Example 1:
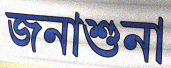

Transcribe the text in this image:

জনাশুনা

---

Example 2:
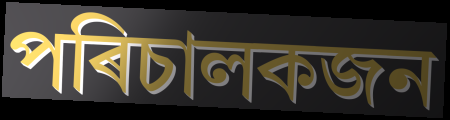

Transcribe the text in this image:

পৰিচালকজন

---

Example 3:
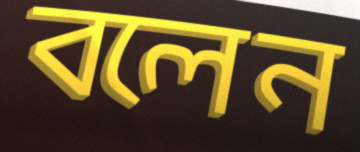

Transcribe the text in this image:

বলেন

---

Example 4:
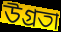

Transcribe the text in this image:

উগ্ৰতা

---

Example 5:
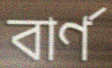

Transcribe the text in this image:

বাৰ্ণ